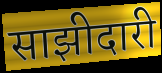
साझीदारी